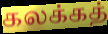
கலக்கத்